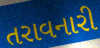
તરાવનારી